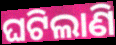
ଘଟିଲାଣି